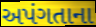
અપંગતાના